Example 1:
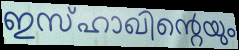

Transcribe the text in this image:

ഇസ്ഹാഖിന്റെയും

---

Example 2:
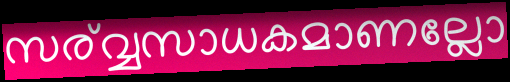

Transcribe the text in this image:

സര്വ്വസാധകമാണല്ലോ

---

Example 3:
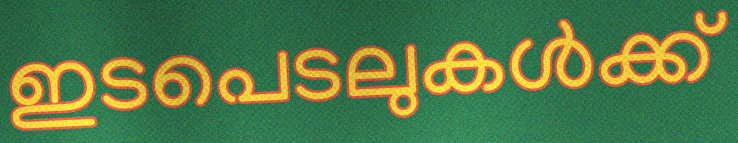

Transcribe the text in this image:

ഇടപെടലുകൾക്ക്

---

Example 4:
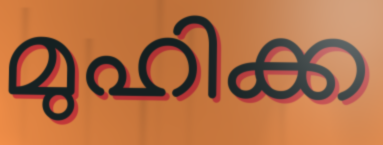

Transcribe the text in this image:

മുഹിക്ക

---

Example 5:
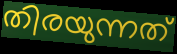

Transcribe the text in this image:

തിരയുന്നത്